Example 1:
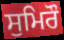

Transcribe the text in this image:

ਸੁਮਿਰੌ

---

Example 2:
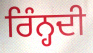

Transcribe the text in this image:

ਰਿੰਨ੍ਹਦੀ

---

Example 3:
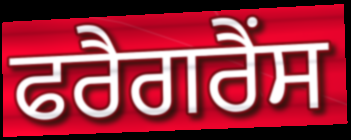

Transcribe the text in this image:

ਫਰੈਗਰੈਂਸ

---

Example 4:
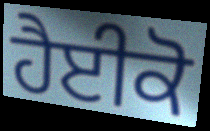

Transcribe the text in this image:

ਹੈਈਕੋ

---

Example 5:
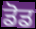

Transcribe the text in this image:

ਡੋਡ